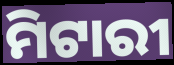
ମିଟାରୀ